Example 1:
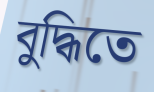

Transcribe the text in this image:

বুদ্ধিতে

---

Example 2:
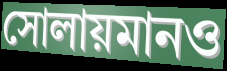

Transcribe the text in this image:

সোলায়মানও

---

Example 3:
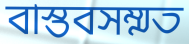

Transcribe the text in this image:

বাস্তবসম্মত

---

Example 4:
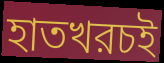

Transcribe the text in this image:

হাতখরচই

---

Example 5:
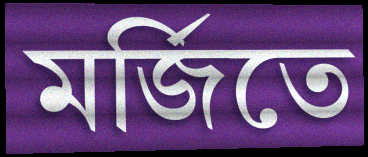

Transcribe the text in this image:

মর্জিতে